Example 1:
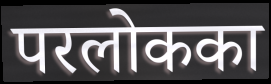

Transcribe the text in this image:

परलोकका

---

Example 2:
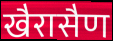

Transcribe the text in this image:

खैरासैण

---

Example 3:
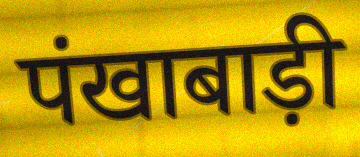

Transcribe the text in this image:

पंखाबाड़ी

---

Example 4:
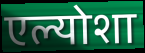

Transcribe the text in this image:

एल्योशा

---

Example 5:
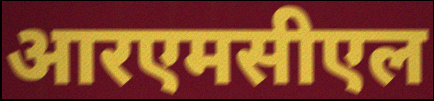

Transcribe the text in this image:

आरएमसीएल